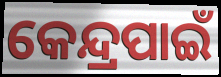
କେନ୍ଦ୍ରପାଇଁ